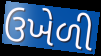
ઉખેળી